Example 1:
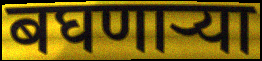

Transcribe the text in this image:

बघणाऱ्या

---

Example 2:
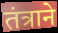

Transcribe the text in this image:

तंत्राने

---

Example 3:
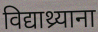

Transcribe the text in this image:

विद्याथ्र्याना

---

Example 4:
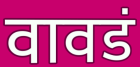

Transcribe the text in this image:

वावडं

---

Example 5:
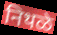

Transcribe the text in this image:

निथळे